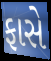
ફાસે